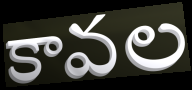
కావల